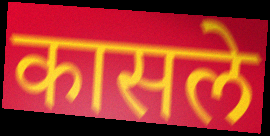
कासले